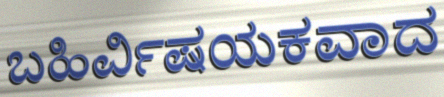
ಬಹಿರ್ವಿಷಯಕವಾದ